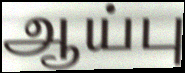
ஆய்பு